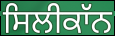
ਸਿਲੀਕਾੱਨ